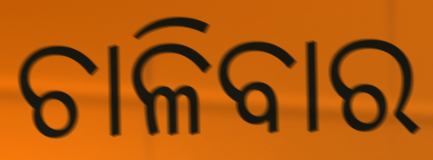
ଚାଳିବାର